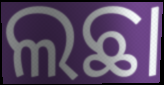
ଲଛା